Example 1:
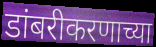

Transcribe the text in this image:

डांबरीकरणाच्या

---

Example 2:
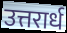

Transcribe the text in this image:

उत्तरार्ध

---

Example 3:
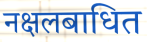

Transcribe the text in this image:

नक्षलबाधित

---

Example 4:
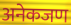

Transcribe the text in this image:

अनेकजण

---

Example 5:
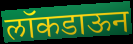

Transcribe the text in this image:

लॉकडाऊन